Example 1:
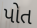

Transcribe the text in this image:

પોત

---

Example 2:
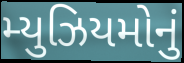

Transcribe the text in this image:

મ્યુઝિયમોનું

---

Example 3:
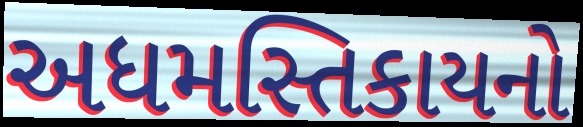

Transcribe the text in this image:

અધમસ્તિકાયનો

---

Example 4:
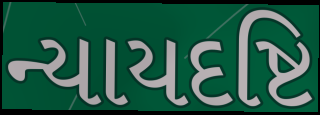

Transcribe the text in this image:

ન્યાયદષ્ટિ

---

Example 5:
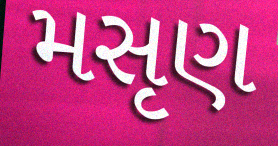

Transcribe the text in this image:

મસૃણ